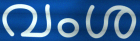
വംശ